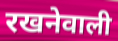
रखनेवाली